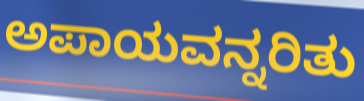
ಅಪಾಯವನ್ನರಿತು